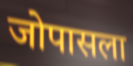
जोपासला